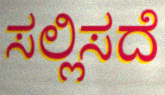
ಸಲ್ಲಿಸದೆ